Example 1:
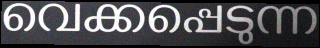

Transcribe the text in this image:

വെക്കപ്പെടുന്ന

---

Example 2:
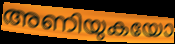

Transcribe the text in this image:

അണിയുകയോ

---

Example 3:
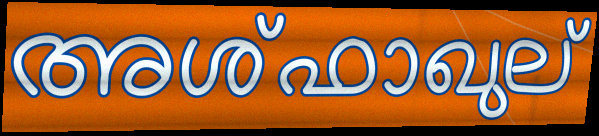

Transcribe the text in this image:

അശ്ഫാഖുല്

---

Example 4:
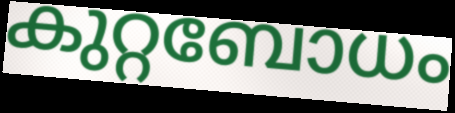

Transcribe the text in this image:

കുറ്റബോധം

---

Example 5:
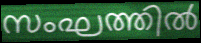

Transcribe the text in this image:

സംഘത്തിൽ